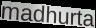
madhurta